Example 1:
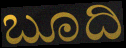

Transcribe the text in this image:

ಬೂದಿ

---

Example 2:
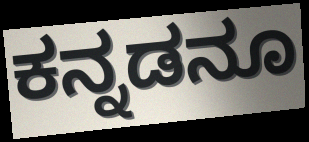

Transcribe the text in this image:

ಕನ್ನಡನೂ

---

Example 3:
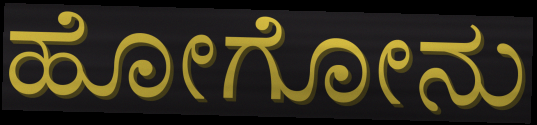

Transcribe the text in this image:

ಹೋಗೋನು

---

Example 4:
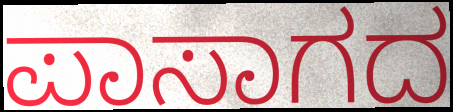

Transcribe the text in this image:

ಪಾಸಾಗದ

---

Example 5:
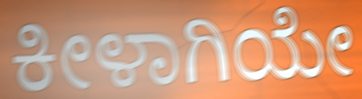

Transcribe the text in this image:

ಕೀಳಾಗಿಯೇ